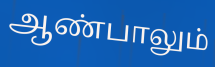
ஆண்பாலும்